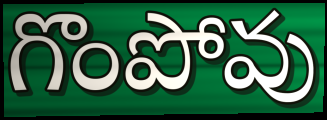
గొంపోవు